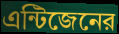
এন্টিজেনের